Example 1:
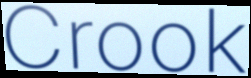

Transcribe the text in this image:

Crook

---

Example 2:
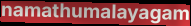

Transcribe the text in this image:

namathumalayagam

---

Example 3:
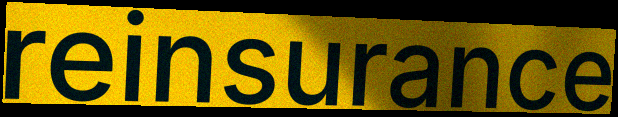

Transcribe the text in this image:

reinsurance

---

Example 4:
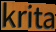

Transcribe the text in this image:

krita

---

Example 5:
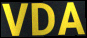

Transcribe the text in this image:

VDA